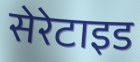
सेरेटाइड